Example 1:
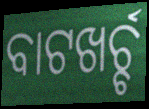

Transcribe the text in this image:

ବାଟଖର୍ଚ୍ଚ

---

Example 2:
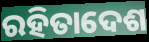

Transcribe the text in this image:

ରହିତାଦେଶ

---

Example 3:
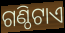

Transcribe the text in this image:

ଗଣ୍ଠିଟାଏ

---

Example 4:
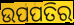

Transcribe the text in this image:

ଉପପତିର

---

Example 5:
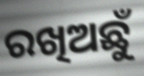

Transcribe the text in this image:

ରଖିଅଛୁଁ